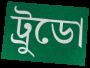
ট্রুডো